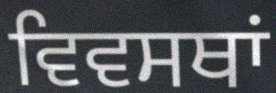
ਵਿਵਸਥਾਂ